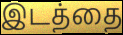
இடத்தை